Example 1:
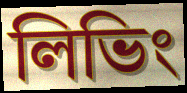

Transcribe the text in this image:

লিভিং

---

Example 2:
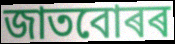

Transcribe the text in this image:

জাতবোৰৰ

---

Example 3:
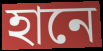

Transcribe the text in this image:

হানে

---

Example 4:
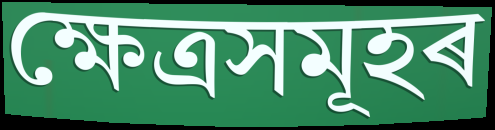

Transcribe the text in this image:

ক্ষেত্ৰসমূহৰ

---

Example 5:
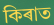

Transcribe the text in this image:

কিৰাত